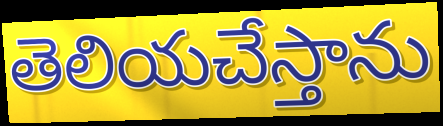
తెలియచేస్తాను